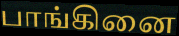
பாங்கினை